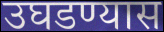
उघडण्यास